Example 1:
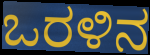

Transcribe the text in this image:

ಒರಳಿನ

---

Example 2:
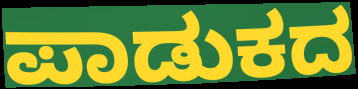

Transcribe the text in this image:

ಪಾಡುಕದ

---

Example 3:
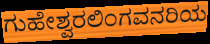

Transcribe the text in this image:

ಗುಹೇಶ್ವರಲಿಂಗವನರಿಯ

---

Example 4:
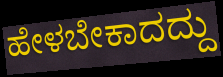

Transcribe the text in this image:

ಹೇಳಬೇಕಾದದ್ದು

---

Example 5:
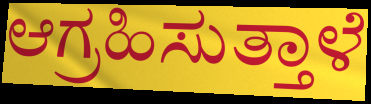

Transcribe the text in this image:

ಆಗ್ರಹಿಸುತ್ತಾಳೆ